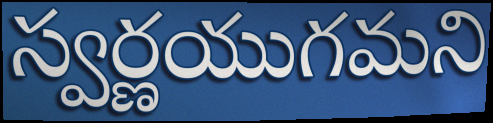
స్వర్ణయుగమని